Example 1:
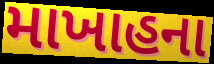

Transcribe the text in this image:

માખાહના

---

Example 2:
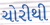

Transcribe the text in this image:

ચોરીથી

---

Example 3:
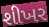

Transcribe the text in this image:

શીખર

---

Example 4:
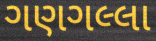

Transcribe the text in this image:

ગણગલ્લા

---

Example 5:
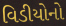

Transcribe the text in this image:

વિડીયોનો